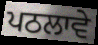
ਪਠਲਾਵੇ